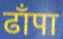
ढाँपा